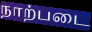
நாற்படை